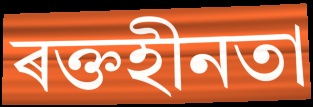
ৰক্তহীনতা